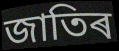
জাতিৰ